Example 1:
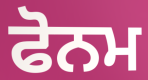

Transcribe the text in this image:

ਫੋਨਮ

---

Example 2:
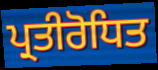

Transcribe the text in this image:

ਪ੍ਰਤੀਰੋਧਿਤ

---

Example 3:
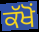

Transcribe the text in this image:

ਕੱਖੋਂ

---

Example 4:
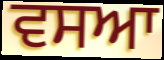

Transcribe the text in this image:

ਵਸਆ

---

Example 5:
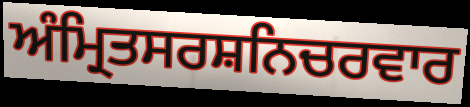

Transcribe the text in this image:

ਅੰਮ੍ਰਿਤਸਰਸ਼ਨਿਚਰਵਾਰ